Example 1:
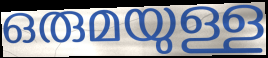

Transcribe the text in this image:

ഒരുമയുള്ള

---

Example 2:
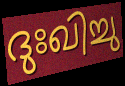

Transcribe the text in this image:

ദുഃഖിച്ചു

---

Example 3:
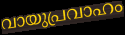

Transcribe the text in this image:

വായുപ്രവാഹം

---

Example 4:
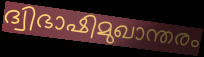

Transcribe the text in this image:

ദ്വിഭാഷിമുഖാന്തരം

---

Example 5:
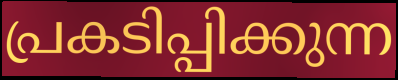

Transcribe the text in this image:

പ്രകടിപ്പിക്കുന്ന